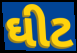
ઘીટ